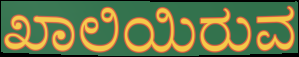
ಖಾಲಿಯಿರುವ